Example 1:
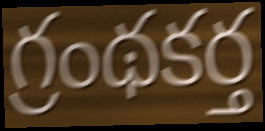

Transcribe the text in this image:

గ్రంథకర్త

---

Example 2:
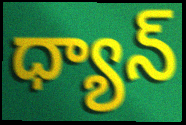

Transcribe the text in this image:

ధ్యాన్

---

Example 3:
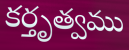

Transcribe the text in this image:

కర్తృత్వము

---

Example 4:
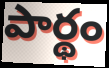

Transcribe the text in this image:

పార్థం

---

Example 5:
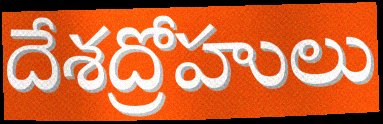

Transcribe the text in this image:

దేశద్రోహులు